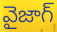
వైజాగ్